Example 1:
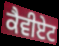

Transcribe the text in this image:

ਕੈਵੀਏਟ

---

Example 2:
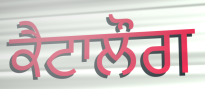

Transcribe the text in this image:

ਕੈਟਾਲੌਗ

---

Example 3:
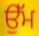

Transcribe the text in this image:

ਉੱਮ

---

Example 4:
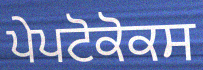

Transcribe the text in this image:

ਪੇਪਟੋਕੋਕਸ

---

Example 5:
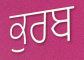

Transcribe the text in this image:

ਕੁਰਬ